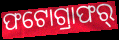
ଫଟୋଗ୍ରାଫର୍